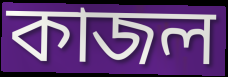
কাজল